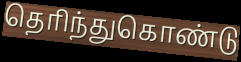
தெரிந்துகொண்டு